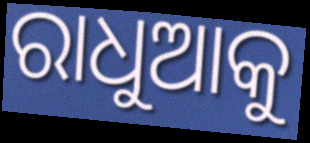
ରାଧୁଆକୁ